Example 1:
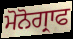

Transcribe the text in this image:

ਮੋਨੋਗ੍ਰਾਫ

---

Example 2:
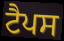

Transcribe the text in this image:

ਟੈਪਸ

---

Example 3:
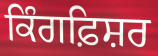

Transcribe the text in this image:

ਕਿੰਗਫ਼ਿਸ਼ਰ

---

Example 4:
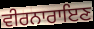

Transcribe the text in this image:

ਵੀਰਨਾਰਾਇਣ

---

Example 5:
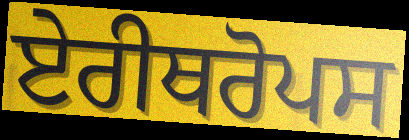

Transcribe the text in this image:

ਏਰੀਥਰੋਪਸ